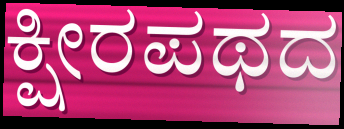
ಕ್ಷೀರಪಥದ